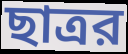
ছাত্রর